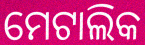
ମେଟାଲିକ